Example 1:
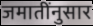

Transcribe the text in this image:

जमातींनुसार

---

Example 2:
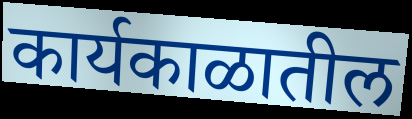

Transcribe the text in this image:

कार्यकाळातील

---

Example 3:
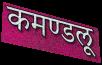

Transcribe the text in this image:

कमण्डलू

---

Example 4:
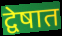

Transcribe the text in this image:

द्वेषात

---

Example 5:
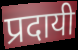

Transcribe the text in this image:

प्रदायी